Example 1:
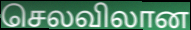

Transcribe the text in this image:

செலவிலான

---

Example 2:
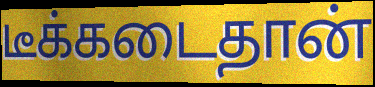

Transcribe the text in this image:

டீக்கடைதான்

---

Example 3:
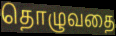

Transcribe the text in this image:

தொழுவதை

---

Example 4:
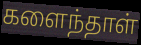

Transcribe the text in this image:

களைந்தாள்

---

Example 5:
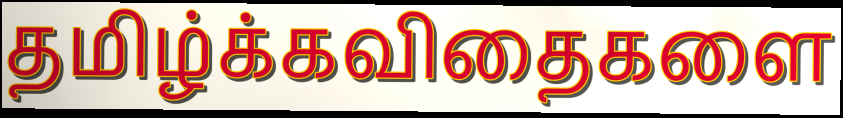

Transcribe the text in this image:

தமிழ்க்கவிதைகளை